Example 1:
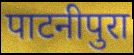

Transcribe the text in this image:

पाटनीपुरा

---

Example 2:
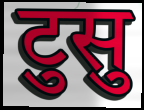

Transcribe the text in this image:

टुसु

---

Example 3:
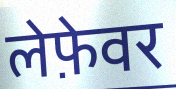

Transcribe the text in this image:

लेफ़ेवर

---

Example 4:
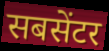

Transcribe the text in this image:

सबसेंटर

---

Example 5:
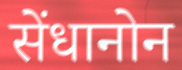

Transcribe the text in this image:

सेंधानोन